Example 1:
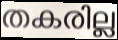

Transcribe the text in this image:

തകരില്ല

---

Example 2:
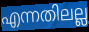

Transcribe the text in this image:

എന്നതിലല്ല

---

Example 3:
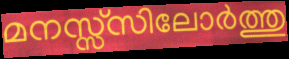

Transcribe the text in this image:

മനസ്സ്സിലോർത്തു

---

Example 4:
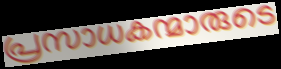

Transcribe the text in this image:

പ്രസാധകന്മാരുടെ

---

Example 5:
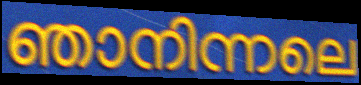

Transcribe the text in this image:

ഞാനിന്നലെ